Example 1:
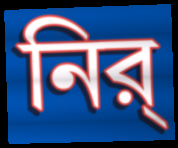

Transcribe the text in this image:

নির্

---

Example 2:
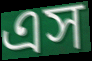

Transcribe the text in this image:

এস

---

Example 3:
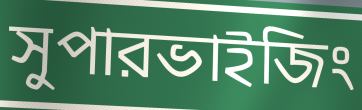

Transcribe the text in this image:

সুপারভাইজিং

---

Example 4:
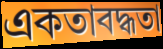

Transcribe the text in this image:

একতাবদ্ধতা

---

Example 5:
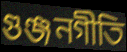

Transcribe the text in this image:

গুঞ্জনগীতি